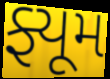
ફ્યૂમ